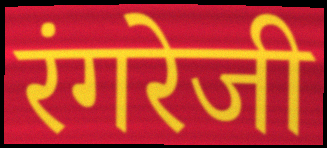
रंगरेजी